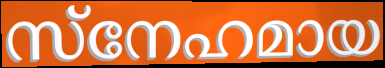
സ്നേഹമായ